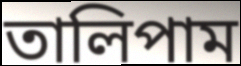
তালিপাম